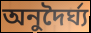
অনুদৈর্ঘ্য